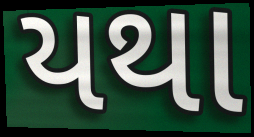
યથા